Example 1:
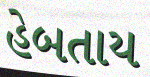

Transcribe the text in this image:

હેબતાય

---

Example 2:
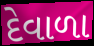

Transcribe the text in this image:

દેવાળા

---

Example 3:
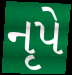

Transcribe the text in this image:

નૃપે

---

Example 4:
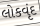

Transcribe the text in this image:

લોકવૃંદ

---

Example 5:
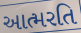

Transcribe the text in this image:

આત્મરતિ